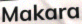
Makara